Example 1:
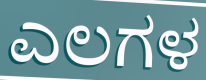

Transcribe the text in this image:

ಎಲಗಳ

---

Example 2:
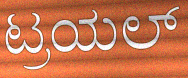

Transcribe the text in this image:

ಟ್ರಯಲ್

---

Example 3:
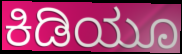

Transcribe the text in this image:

ಕಿಡಿಯೂ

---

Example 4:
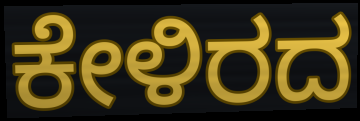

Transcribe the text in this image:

ಕೇಳಿರದ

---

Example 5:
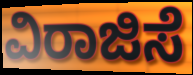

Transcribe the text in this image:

ವಿರಾಜಿಸೆ